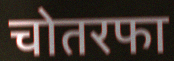
चोतरफा